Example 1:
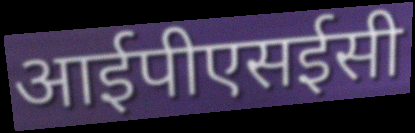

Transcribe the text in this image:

आईपीएसईसी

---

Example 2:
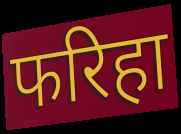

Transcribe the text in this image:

फरिहा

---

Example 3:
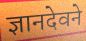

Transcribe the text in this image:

ज्ञानदेवने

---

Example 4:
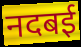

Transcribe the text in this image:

नदबई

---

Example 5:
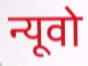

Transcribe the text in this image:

न्यूवो